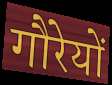
गौरेयों